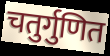
चतुर्गुणित